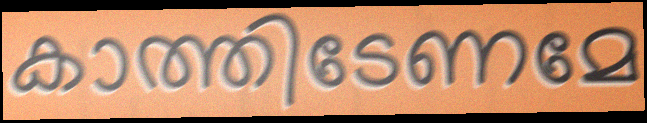
കാത്തിടേണമേ